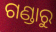
ଗଣ୍ଡାରୁ